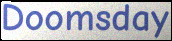
Doomsday